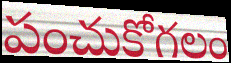
పంచుకోగలం